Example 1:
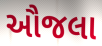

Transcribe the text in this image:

ઔજલા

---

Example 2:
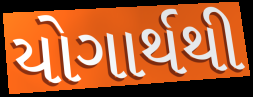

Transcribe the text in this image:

યોગાર્થથી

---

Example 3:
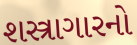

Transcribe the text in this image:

શસ્ત્રાગારનો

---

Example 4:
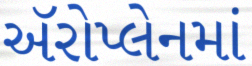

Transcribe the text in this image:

ઍરોપ્લેનમાં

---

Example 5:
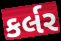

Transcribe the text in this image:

કર્લર